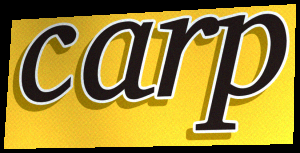
carp